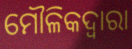
ମୌଳିକଦ୍ଵାରା